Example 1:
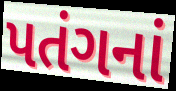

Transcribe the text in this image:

પતંગનાં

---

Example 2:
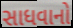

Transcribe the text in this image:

સાધવાનો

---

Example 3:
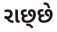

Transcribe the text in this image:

રાછ્છે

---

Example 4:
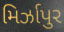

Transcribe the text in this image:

મિર્ઝાપુર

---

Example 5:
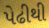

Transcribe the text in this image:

પેઢીથી